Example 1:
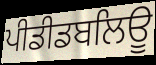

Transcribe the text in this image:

ਪੀਡੀਡਬਲਿਊ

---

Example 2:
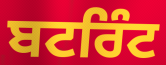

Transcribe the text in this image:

ਬਟਰਿੰਟ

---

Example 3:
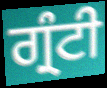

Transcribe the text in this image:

ਗ੍ਰੰਟੀ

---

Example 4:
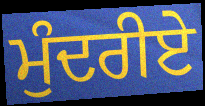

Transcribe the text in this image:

ਮੁੰਦਰੀਏ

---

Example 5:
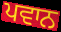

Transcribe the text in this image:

ਪਵਾਨ